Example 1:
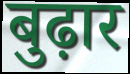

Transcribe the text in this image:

बुढ़ार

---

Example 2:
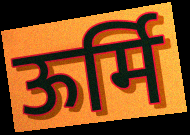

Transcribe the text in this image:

ऊर्मि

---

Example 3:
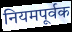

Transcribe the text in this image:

नियमपूर्वक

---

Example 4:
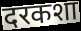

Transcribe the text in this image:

दरकशा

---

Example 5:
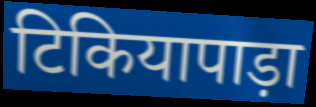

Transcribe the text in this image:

टिकियापाड़ा